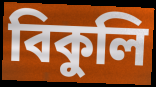
বিকুলি